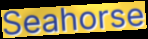
Seahorse